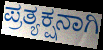
ಪ್ರತ್ಯಕ್ಷನಾಗಿ